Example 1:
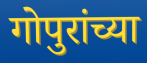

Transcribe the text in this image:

गोपुरांच्या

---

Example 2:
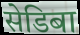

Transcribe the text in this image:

सेडिबा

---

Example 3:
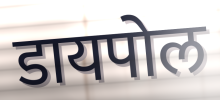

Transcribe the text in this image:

डायपोल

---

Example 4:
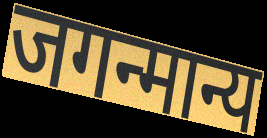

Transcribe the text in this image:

जगन्मान्य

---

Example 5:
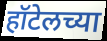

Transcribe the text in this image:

हॉटेलच्या